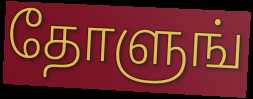
தோளுங்